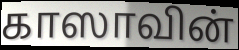
காஸாவின்